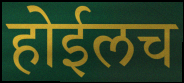
होईलच